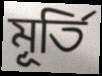
মূর্তি